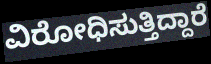
ವಿರೋಧಿಸುತ್ತಿದ್ದಾರೆ